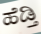
ಹೆಡ್ತಿ